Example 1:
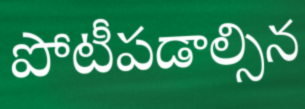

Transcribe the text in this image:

పోటీపడాల్సిన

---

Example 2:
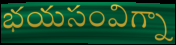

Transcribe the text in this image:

భయసంవిగ్నా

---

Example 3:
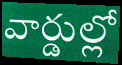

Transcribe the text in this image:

వార్డుల్లో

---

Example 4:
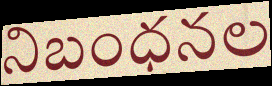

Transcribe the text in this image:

నిబంధనల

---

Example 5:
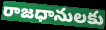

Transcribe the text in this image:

రాజధానులకు